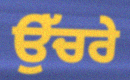
ਉੱਚਰੇ